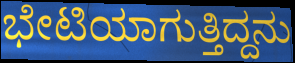
ಭೇಟಿಯಾಗುತ್ತಿದ್ದನು